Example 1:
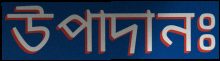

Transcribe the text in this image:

উপাদানঃ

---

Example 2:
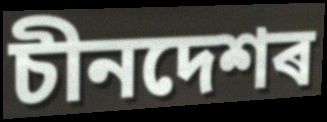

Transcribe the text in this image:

চীনদেশৰ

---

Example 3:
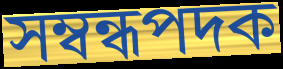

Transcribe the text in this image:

সম্বন্ধপদক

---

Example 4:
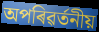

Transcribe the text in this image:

অপৰিৱৰ্তনীয়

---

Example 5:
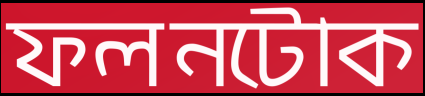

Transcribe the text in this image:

ফলনটোক